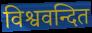
विश्ववन्दित